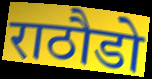
राठौडो